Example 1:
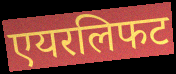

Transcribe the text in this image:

एयरलिफट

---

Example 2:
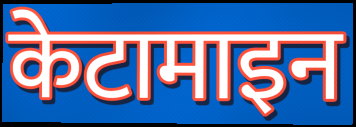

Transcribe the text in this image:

केटामाइन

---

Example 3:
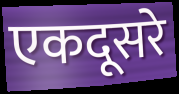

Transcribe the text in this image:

एकदूसरे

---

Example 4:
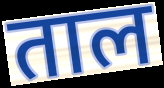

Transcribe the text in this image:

ताल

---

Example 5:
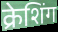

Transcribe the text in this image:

क्रेशिंग